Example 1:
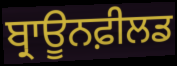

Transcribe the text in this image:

ਬ੍ਰਾਊਨਫ਼ੀਲਡ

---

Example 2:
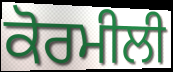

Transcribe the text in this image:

ਕੋਰਮੀਲੀ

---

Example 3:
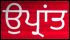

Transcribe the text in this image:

ਉਪ੍ਰਾਂਤ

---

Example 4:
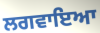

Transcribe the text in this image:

ਲਗਵਾਇਆ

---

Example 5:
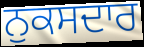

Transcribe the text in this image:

ਨੁਕਸਦਾਰ